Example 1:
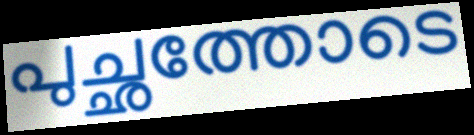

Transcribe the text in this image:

പുച്ഛത്തോടെ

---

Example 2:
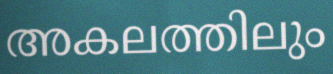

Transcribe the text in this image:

അകലത്തിലും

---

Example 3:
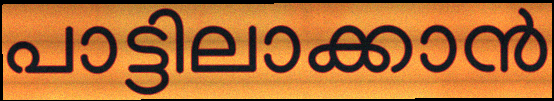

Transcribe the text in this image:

പാട്ടിലാക്കാൻ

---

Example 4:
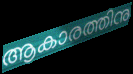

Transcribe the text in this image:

ആകാരത്തിനു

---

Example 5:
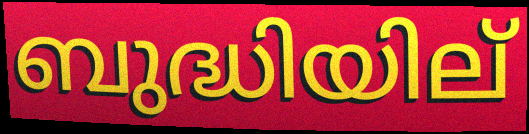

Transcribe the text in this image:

ബുദ്ധിയില്